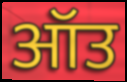
ऑउ